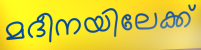
മദീനയിലേക്ക്